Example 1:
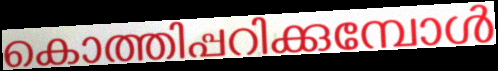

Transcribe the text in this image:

കൊത്തിപ്പറിക്കുമ്പോൾ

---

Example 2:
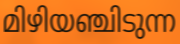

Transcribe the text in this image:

മിഴിയഞ്ചിടുന്ന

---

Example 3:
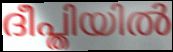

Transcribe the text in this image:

ദീപ്തിയിൽ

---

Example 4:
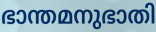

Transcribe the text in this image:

ഭാന്തമനുഭാതി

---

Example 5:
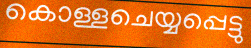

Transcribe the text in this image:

കൊള്ളചെയ്യപ്പെട്ടു